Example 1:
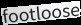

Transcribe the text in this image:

footloose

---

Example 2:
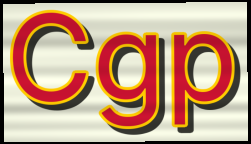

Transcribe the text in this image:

Cgp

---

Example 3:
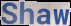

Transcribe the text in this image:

Shaw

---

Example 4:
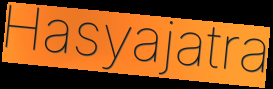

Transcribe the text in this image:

Hasyajatra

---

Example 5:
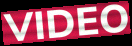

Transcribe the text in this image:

VIDEO